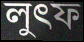
লুৎফ